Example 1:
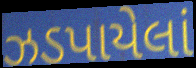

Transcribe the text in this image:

ઝડપાયેલાં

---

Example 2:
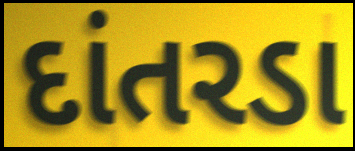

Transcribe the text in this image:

દાંતરડા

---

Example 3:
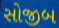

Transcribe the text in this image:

સોજીબ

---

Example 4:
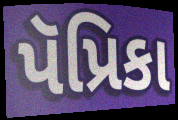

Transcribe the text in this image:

પૅપ્રિકા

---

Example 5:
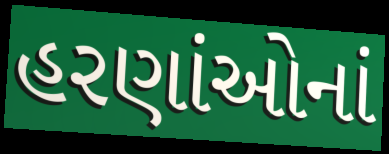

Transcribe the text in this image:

હરણાંઓનાં